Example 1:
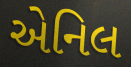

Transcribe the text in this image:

એનિલ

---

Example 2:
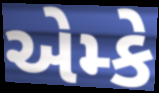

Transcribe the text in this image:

એમ્કે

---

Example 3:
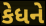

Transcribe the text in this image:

કેધને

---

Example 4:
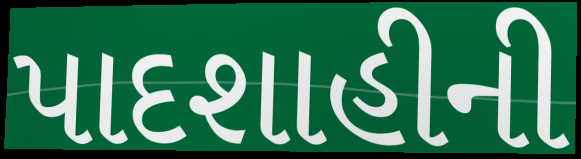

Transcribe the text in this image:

પાદશાહીની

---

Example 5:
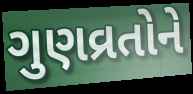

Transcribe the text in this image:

ગુણવ્રતોને